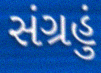
સંગ્રહું